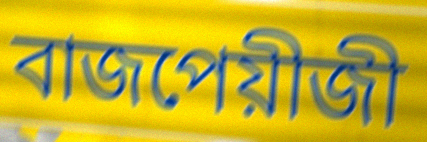
বাজপেয়ীজী